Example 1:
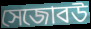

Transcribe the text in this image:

সেজোবউ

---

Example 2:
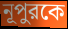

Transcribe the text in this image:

নূপুরকে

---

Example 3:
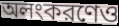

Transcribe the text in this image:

অলংকরণেও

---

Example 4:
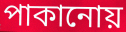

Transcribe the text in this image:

পাকানোয়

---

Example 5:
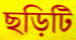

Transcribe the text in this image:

ছড়িটি